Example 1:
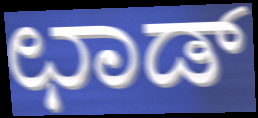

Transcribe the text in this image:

ಛಾಡ್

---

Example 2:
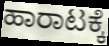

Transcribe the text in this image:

ಹಾರಾಟಕ್ಕೆ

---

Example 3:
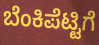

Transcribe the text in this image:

ಬೆಂಕಿಪೆಟ್ಟಿಗೆ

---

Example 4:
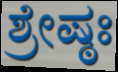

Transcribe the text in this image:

ಶ್ರೇಷ್ಠಃ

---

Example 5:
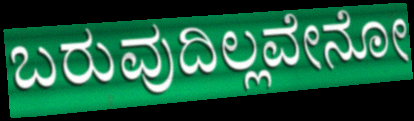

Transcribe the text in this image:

ಬರುವುದಿಲ್ಲವೇನೋ